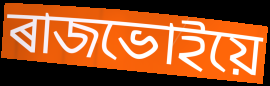
ৰাজভোইয়ে